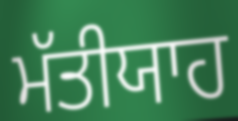
ਮੱਤੀਯਾਹ